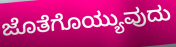
ಜೊತೆಗೊಯ್ಯುವುದು